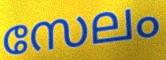
സേലം